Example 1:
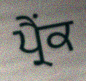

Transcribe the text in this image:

ਪ੍ਰੈਂਕ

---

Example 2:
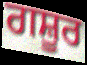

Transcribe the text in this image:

ਗਸ਼ੂਰ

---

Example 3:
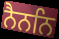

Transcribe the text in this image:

ਨੈਨਨਿ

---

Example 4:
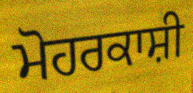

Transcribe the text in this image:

ਮੋਹਰਕਾਸ਼ੀ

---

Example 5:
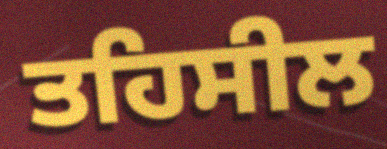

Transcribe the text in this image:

ਤਹਿਸੀਲ